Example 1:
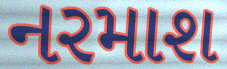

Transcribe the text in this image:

નરમાશ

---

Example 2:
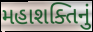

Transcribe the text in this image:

મહાશક્તિનું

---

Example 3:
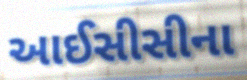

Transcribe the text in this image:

આઈસીસીના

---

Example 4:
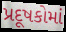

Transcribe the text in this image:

પ્રદૂષકોમાં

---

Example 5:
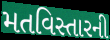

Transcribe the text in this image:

મતવિસ્તારની